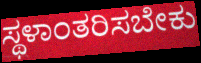
ಸ್ಥಳಾಂತರಿಸಬೇಕು